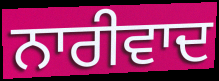
ਨਾਰੀਵਾਦ